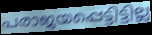
പരാജയപ്പെട്ടിട്ടില്ല